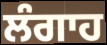
ਲੰਗਾਹ